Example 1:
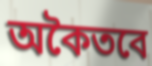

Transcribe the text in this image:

অকৈতবে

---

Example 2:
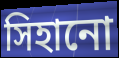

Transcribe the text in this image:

সিহানো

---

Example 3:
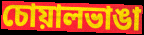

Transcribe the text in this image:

চোয়ালভাঙা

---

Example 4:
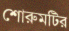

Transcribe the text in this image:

শোরুমটির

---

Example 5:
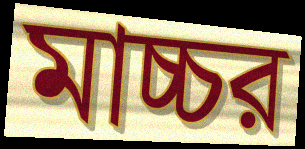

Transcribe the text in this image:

মাচ্চর